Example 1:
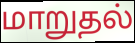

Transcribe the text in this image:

மாறுதல்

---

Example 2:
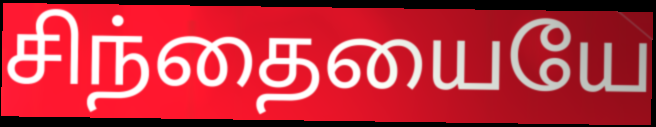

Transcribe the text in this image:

சிந்தையையே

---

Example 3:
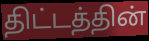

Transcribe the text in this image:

திட்டத்தின்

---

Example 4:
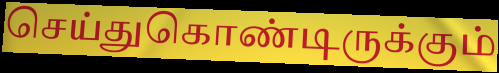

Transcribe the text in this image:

செய்துகொண்டிருக்கும்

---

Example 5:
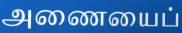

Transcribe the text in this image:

அணையைப்